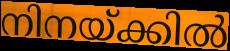
നിനയ്ക്കിൽ